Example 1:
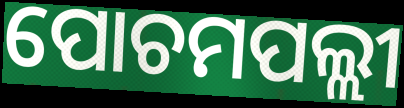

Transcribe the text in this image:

ପୋଚମପଲ୍ଲୀ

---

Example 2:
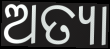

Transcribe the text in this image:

ଅତ୍ୟା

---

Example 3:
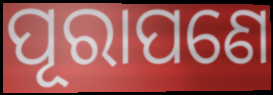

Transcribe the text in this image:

ପୂରାପଣେ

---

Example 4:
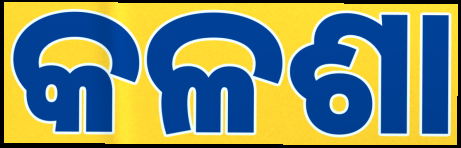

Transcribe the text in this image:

କଳଶା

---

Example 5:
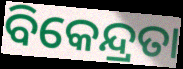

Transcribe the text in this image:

ବିକେନ୍ଦ୍ରତା